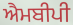
ਐਮਬੀਪੀ